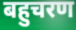
बहुचरण